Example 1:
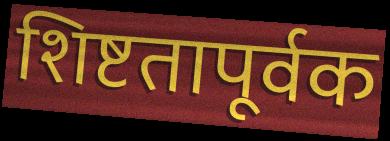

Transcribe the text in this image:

शिष्टतापूर्वक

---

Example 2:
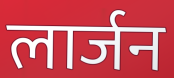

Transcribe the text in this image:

लार्जन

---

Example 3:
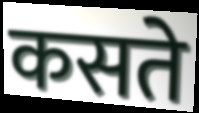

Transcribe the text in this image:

कसते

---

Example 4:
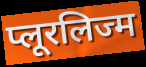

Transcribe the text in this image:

प्लूरलिज्म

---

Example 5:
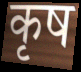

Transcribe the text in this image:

कृष